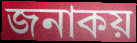
জনাকয়